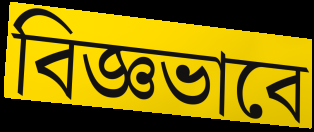
বিজ্ঞভাবে